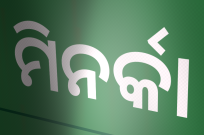
ମିନର୍କା